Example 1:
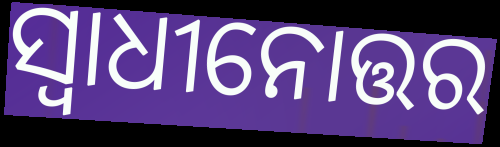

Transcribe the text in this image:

ସ୍ୱାଧୀନୋତ୍ତର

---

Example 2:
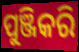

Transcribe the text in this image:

ପୁଞ୍ଜିକରି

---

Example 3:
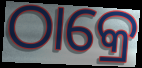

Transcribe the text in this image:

ଠାକ୍ରେ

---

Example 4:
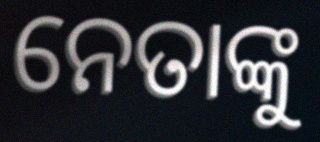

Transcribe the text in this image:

ନେତାଙ୍କୁ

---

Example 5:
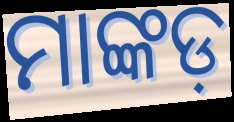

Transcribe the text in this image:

ମାଙ୍କଡ଼